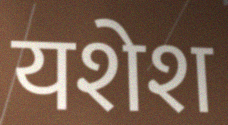
यशेश